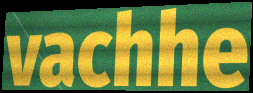
vachhe